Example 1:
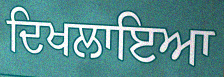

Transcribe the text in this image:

ਦਿਖਲਾਇਆ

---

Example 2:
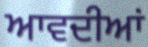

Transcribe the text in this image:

ਆਵਦੀਆਂ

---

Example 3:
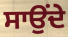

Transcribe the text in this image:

ਸਾਉਂਦੇ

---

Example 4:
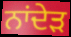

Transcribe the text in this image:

ਨਾਂਦੇੜ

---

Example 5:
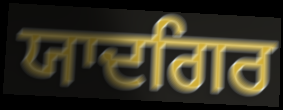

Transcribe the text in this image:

ਯਾਦਗਿਰ